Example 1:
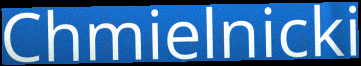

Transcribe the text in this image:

Chmielnicki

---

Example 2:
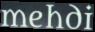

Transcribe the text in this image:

mehdi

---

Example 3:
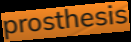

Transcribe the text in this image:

prosthesis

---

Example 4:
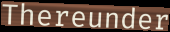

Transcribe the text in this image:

Thereunder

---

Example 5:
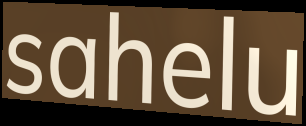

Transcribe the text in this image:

sahelu